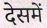
देसमें